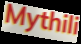
Mythili